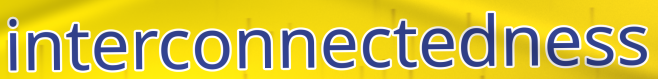
interconnectedness